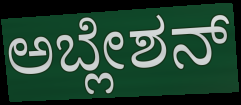
ಅಬ್ಲೇಶನ್